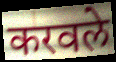
करवले